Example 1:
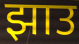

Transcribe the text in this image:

झाउ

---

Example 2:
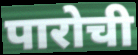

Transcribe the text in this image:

पारोची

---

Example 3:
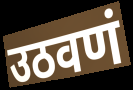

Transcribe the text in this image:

उठवणं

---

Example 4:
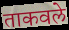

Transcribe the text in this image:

ताकवले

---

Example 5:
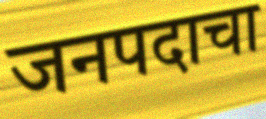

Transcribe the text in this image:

जनपदाचा